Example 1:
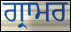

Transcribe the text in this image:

ਗ੍ਰਾਮਰ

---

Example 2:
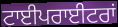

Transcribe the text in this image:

ਟਾਈਪਰਾਈਟਰਾਂ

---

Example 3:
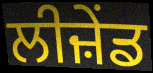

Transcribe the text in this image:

ਲੀਜ਼ੇਂਡ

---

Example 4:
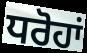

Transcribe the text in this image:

ਧਰੋਹਾਂ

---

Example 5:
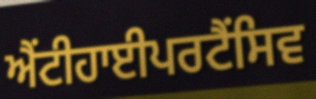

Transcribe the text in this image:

ਐਂਟੀਹਾਈਪਰਟੈਂਸਿਵ